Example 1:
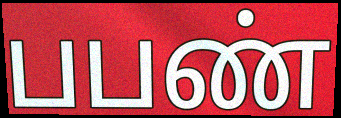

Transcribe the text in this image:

பபண்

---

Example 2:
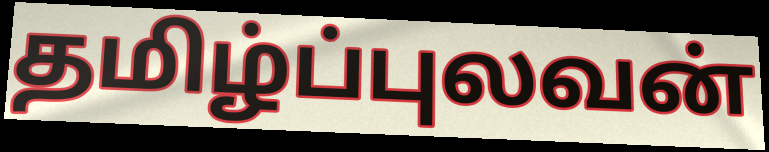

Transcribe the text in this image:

தமிழ்ப்புலவன்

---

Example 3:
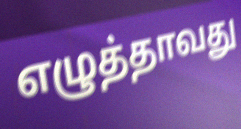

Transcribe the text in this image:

எழுத்தாவது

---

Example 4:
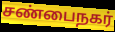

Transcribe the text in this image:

சண்பைநகர்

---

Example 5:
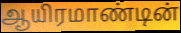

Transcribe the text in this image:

ஆயிரமாண்டின்